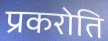
प्रकरोति